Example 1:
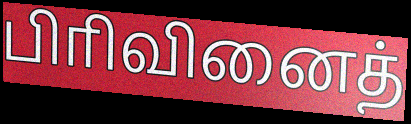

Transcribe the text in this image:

பிரிவினைத்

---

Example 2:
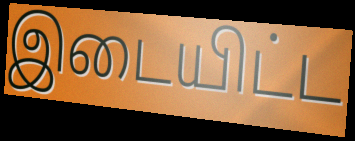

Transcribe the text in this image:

இடையிட்ட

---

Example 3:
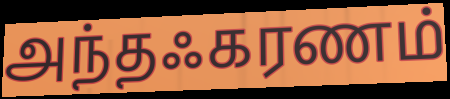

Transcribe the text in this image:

அந்தஃகரணம்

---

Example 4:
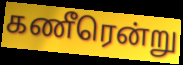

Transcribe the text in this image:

கணீரென்று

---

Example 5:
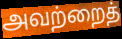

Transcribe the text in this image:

அவற்றைத்